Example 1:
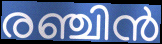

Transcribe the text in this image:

രഞ്ചിൻ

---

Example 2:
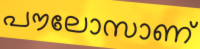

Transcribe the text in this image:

പൗലോസാണ്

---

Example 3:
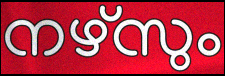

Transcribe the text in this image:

നഴ്സും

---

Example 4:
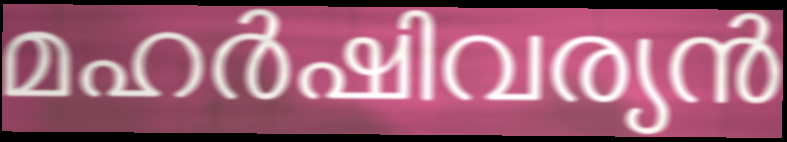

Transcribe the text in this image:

മഹർഷിവര്യൻ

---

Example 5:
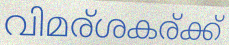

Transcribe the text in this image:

വിമര്ശകര്ക്ക്